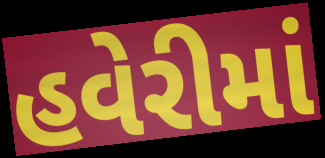
હવેરીમાં